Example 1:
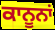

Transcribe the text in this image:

ਕਾਨੂਨਾਂ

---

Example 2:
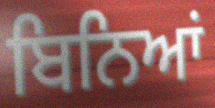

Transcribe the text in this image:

ਬਿਨਿਆਂ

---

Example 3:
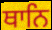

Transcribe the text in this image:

ਥਾਨਿ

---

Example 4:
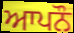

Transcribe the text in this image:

ਆਪਨੌ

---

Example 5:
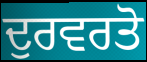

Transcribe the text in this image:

ਦੁਰਵਰਤੋ